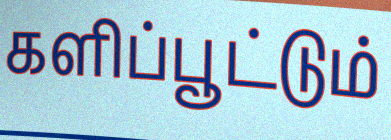
களிப்பூட்டும்